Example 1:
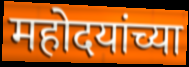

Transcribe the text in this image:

महोदयांच्या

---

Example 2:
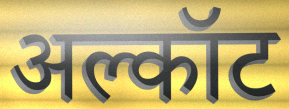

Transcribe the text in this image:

अल्कॉट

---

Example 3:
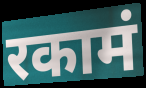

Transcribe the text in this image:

रकामं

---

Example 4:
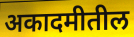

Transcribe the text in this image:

अकादमीतील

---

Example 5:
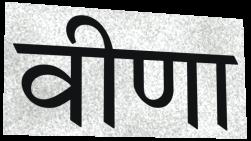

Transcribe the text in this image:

वीणा